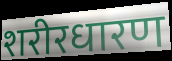
शरीरधारण